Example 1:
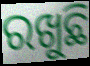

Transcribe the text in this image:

ରଖୁଛି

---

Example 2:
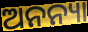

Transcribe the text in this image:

ଅନନ୍ୟା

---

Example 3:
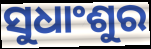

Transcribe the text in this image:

ସୁଧାଂଶୁର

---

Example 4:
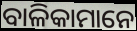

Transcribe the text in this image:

ବାଳିକାମାନେ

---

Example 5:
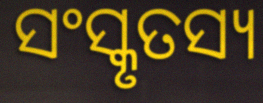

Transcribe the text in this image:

ସଂସ୍କୃତସ୍ୟ